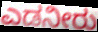
ಎಡನೀರು